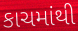
કાચમાંથી